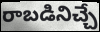
రాబడినిచ్చే